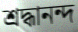
শ্ৰদ্ধানন্দ